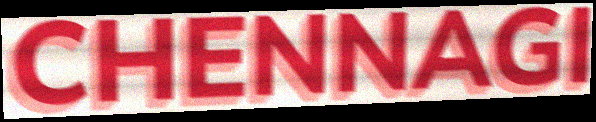
CHENNAGI